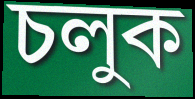
চলুক